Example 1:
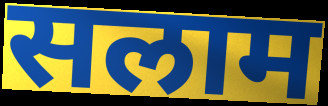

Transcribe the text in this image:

सलाम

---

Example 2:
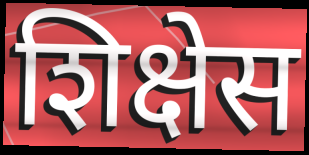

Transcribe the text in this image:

शिक्षेस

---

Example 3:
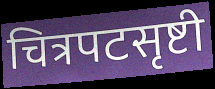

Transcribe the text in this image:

चित्रपटसृष्टी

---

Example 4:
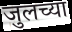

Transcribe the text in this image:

जुलच्या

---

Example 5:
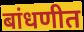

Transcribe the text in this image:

बांधणीत